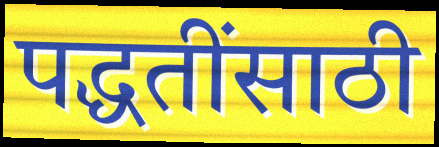
पद्धतींसाठी